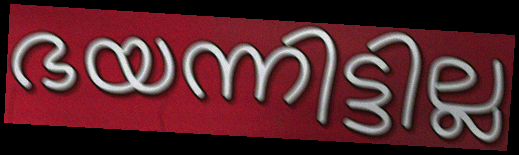
ഭയന്നിട്ടില്ല